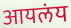
आयलंय